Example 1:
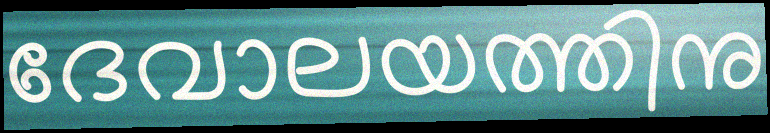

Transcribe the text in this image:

ദേവാലയത്തിനു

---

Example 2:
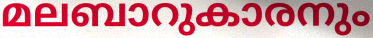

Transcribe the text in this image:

മലബാറുകാരനും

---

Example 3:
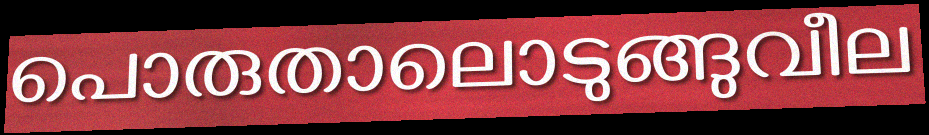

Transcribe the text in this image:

പൊരുതാലൊടുങ്ങുവീല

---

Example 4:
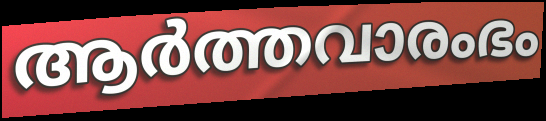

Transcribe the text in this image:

ആർത്തവാരംഭം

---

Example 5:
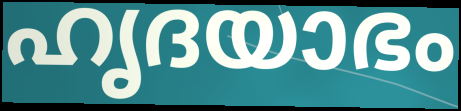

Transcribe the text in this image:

ഹൃദയാഭം